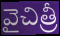
వైచిత్రీ